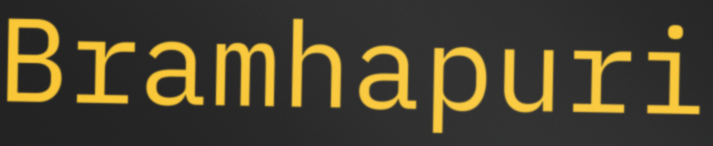
Bramhapuri